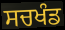
ਸਚਖੰਡ